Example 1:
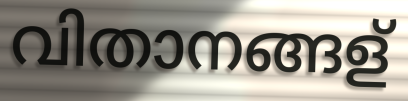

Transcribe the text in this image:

വിതാനങ്ങള്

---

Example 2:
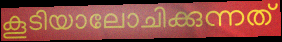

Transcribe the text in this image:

കൂടിയാലോചിക്കുന്നത്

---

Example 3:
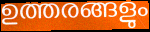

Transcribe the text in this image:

ഉത്തരങ്ങളും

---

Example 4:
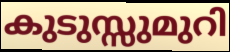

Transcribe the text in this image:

കുടുസ്സുമുറി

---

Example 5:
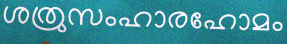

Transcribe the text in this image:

ശത്രുസംഹാരഹോമം